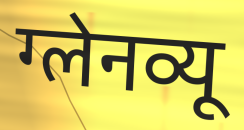
ग्लेनव्यू